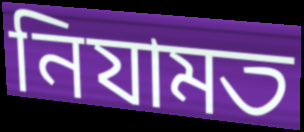
নিযামত